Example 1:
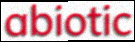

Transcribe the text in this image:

abiotic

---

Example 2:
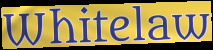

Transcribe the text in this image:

Whitelaw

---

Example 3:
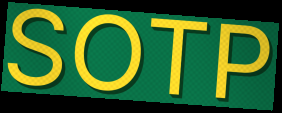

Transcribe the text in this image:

SOTP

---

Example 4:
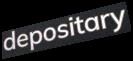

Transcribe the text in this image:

depositary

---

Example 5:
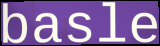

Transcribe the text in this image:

basle